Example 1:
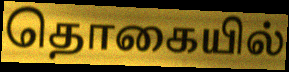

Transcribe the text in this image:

தொகையில்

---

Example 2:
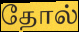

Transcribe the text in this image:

தோல்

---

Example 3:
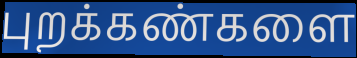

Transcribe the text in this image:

புறக்கண்களை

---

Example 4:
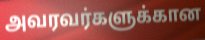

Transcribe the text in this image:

அவரவர்களுக்கான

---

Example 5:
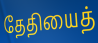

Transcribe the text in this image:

தேதியைத்